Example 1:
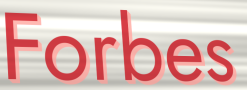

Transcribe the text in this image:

Forbes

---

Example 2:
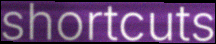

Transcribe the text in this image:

shortcuts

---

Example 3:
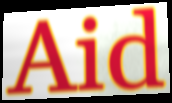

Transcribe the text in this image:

Aid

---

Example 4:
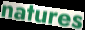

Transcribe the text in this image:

natures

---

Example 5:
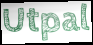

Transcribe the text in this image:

Utpal